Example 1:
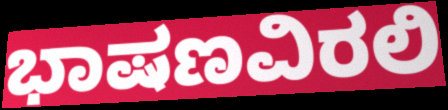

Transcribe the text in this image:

ಭಾಷಣವಿರಲಿ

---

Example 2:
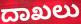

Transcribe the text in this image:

ದಾಖಲು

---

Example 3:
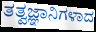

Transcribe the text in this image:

ತತ್ವಜ್ಞಾನಿಗಳಾದ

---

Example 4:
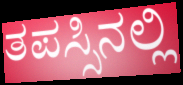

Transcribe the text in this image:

ತಪಸ್ಸಿನಲ್ಲಿ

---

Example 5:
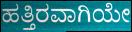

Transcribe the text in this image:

ಹತ್ತಿರವಾಗಿಯೇ